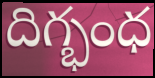
దిగ్భంధ